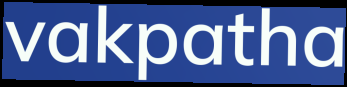
vakpatha